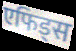
एफिड्स